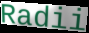
Radii